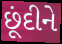
છૂંદીને